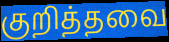
குறித்தவை